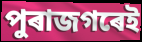
পুৰাজগৰেই